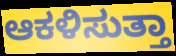
ಆಕಳಿಸುತ್ತಾ